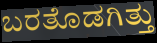
ಬರತೊಡಗಿತ್ತು